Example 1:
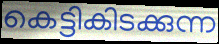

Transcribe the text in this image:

കെട്ടികിടക്കുന്ന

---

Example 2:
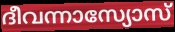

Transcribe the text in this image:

ദീവന്നാസ്യോസ്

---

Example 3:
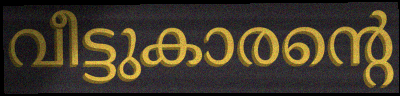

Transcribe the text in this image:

വീട്ടുകാരന്റെ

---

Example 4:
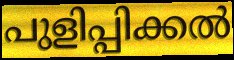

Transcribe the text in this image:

പുളിപ്പിക്കൽ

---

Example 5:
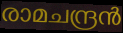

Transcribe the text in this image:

രാമചന്ദ്രൻ